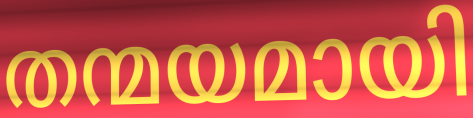
തന്മയമായി